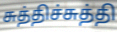
சுத்திச்சுத்தி